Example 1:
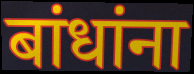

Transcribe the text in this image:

बांधांना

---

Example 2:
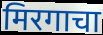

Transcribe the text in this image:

मिरगाचा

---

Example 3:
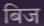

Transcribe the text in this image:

बिज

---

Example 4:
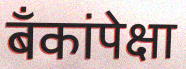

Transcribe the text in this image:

बँकांपेक्षा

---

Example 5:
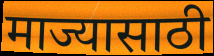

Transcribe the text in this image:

माज्यासाठी